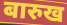
बारुख